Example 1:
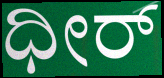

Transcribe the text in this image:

ಧೀರ್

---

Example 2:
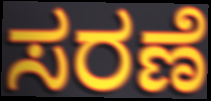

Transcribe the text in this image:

ಸರಣೆ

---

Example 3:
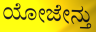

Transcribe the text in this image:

ಯೋಜೇನ್ತು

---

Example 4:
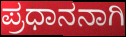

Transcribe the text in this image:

ಪ್ರಧಾನನಾಗಿ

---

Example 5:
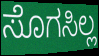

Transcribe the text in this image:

ಸೊಗಸಿಲ್ಲ